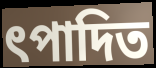
ৎপাদিত